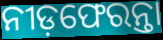
ନୀଡ଼ଫେରନ୍ତା